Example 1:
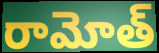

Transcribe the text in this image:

రామోత్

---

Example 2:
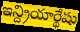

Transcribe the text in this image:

ఇన్ద్రియార్థేషు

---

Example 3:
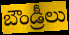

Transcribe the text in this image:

బౌండ్రీలు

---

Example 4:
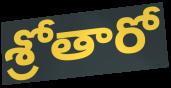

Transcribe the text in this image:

శ్రోతారో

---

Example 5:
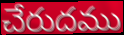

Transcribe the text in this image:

చేరుదము